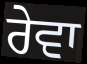
ਰੇਵਾ